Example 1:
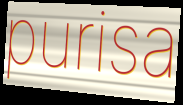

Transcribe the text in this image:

purisa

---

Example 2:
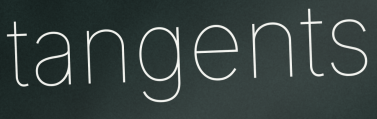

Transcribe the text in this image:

tangents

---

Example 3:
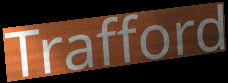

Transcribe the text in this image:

Trafford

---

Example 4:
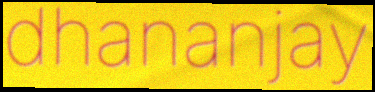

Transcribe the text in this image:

dhananjay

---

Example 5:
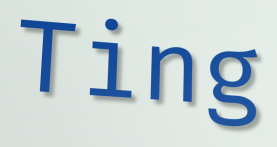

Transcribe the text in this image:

Ting